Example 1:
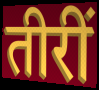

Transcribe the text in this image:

तीरीं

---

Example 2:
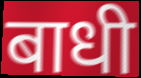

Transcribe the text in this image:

बाधी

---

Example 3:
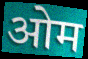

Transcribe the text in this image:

ओम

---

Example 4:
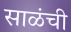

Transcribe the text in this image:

साळंची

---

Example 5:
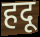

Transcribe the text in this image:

हदू